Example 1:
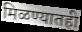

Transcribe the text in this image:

मिळण्यातही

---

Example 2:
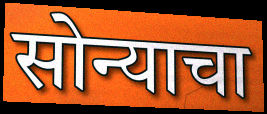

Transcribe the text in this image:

सोन्याचा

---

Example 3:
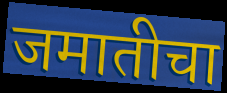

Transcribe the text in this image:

जमातीचा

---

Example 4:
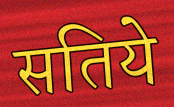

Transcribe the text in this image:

सतिये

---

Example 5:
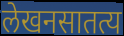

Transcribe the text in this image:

लेखनसातत्य